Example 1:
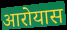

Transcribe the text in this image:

आरोयास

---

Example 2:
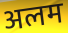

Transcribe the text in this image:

अलम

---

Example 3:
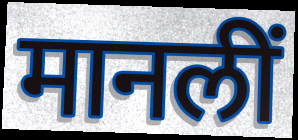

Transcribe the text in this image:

मानलीं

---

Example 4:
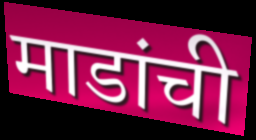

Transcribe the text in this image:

माडांची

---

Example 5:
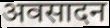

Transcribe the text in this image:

अवसादन